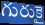
గురుకై